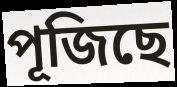
পূজিছে